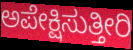
ಅಪೇಕ್ಷಿಸುತ್ತೀರಿ